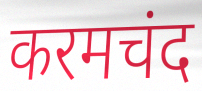
करमचंद